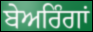
ਬੇਅਰਿੰਗਾਂ